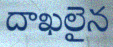
దాఖలైన